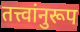
तत्त्वांनुरूप